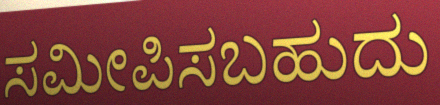
ಸಮೀಪಿಸಬಹುದು